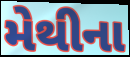
મેથીના